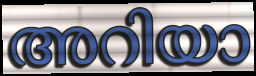
അറിയാ